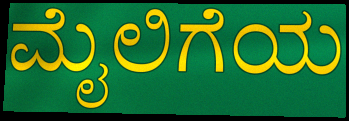
ಮೈಲಿಗೆಯ